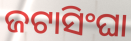
ଜଟାସିଂଘା